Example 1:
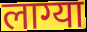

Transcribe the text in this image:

लाग्या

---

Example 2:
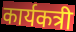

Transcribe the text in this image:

कार्यकत्री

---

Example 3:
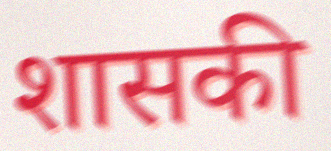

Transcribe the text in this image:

शासकी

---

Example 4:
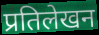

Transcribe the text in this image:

प्रतिलेखन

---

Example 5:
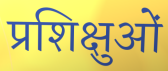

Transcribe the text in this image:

प्रशिक्षुओं